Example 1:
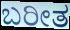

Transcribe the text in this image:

ಬರೀತ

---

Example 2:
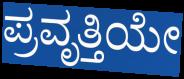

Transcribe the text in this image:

ಪ್ರವೃತ್ತಿಯೇ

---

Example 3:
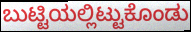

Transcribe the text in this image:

ಬುಟ್ಟಿಯಲ್ಲಿಟ್ಟುಕೊಂಡು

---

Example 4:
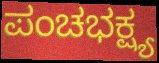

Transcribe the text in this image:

ಪಂಚಭಕ್ಷ್ಯ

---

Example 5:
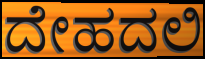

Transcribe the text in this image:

ದೇಹದಲಿ